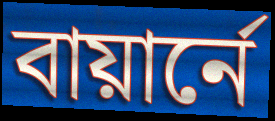
বায়ার্নে